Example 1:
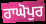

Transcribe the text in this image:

ਰਾਘੋਪੁਰ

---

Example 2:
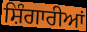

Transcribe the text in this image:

ਸ਼ਿੰਗਾਰੀਆਂ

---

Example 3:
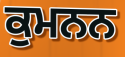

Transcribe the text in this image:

ਕੁਮਨਨ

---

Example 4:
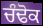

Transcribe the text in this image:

ਚੰਢੋਕ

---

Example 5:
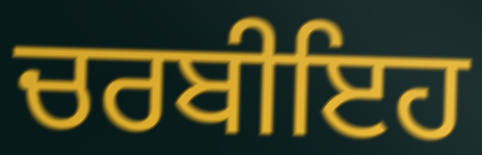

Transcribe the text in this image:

ਚਰਬੀਇਹ